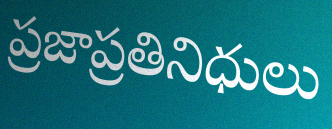
ప్రజాప్రతినిధులు